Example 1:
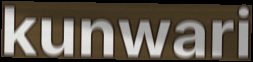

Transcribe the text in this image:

kunwari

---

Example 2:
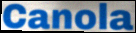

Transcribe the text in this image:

Canola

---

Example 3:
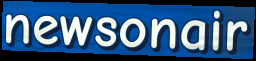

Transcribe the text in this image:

newsonair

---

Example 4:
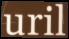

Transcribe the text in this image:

uril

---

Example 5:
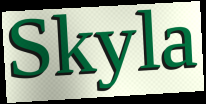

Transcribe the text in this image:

Skyla